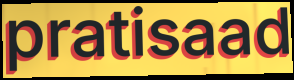
pratisaad